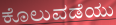
ಕೊಲುವಡೆಯು